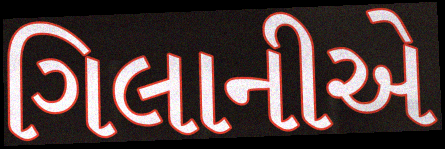
ગિલાનીએ